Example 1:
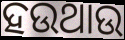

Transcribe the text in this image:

ହଉଥାଉ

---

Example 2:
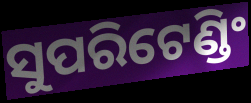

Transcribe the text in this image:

ସୁପରିଟେଣ୍ଡିଂ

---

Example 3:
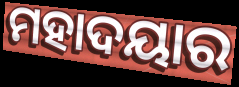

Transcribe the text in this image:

ମହାଦୟାର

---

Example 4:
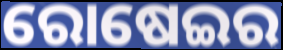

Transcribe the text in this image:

ରୋଷେଇର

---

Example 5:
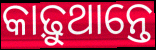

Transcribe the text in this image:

କାଢ଼ୁଥାନ୍ତେ